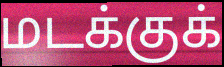
மடக்குக்